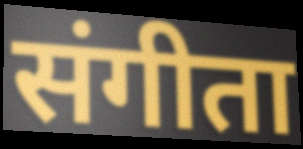
संगीता